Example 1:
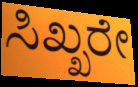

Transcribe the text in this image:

ಸಿಖ್ಖರೇ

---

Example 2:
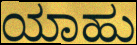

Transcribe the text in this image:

ಯಾಹು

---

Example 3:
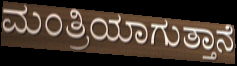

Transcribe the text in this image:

ಮಂತ್ರಿಯಾಗುತ್ತಾನೆ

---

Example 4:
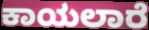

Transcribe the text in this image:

ಕಾಯಲಾರೆ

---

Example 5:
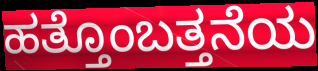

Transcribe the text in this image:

ಹತ್ತೊಂಬತ್ತನೆಯ